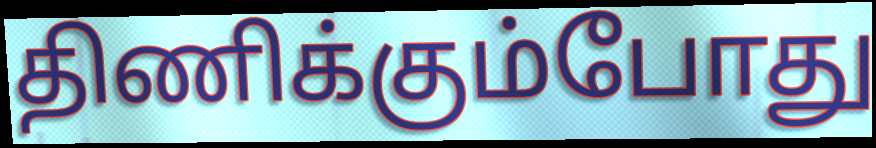
திணிக்கும்போது